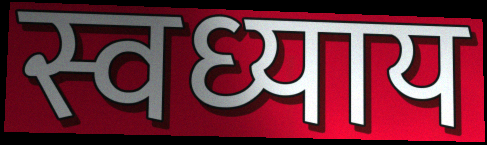
स्वध्याय